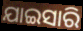
ଯାଇସାରି